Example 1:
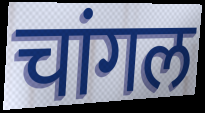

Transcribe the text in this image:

चांगल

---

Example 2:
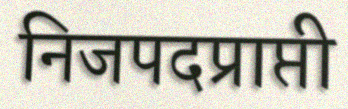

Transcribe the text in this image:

निजपदप्राप्ती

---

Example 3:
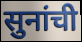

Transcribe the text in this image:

सुनांची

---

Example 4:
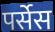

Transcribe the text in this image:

पर्सेस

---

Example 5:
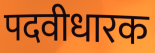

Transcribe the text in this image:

पदवीधारक